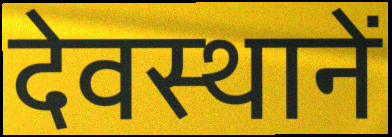
देवस्थानें